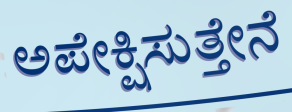
ಅಪೇಕ್ಷಿಸುತ್ತೇನೆ